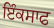
ਇੰਕਸਾਫ